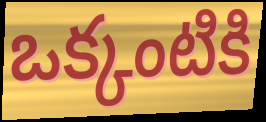
ఒక్కంటికి